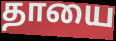
தாயை